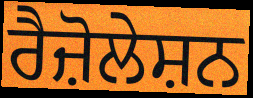
ਰੈਜ਼ੋਲੇਸ਼ਨ